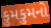
કુમકુમનો